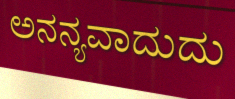
ಅನನ್ಯವಾದುದು